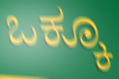
ಒಕ್ಕೂ